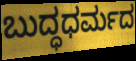
ಬುದ್ಧಧರ್ಮದ